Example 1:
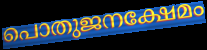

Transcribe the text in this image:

പൊതുജനക്ഷേമം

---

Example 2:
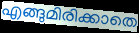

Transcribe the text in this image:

എങ്ങുമിരിക്കാതെ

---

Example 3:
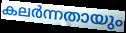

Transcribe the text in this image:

കലർന്നതായും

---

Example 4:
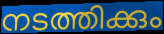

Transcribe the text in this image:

നടത്തിക്കും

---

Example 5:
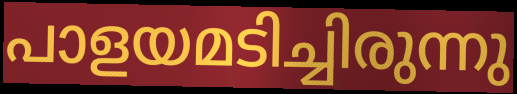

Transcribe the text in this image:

പാളയമടിച്ചിരുന്നു